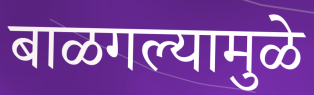
बाळगल्यामुळे